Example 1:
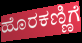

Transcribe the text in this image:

ಹೊರಕಣ್ಣಿಗೆ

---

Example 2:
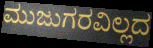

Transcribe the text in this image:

ಮುಜುಗರವಿಲ್ಲದ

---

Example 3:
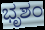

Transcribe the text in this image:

ಭೃಶಂ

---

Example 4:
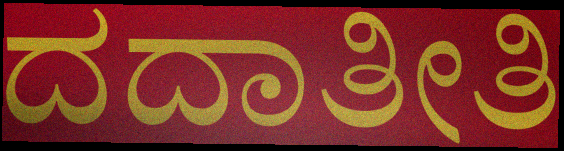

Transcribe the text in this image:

ದದಾತೀತಿ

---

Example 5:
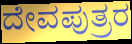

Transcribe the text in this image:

ದೇವಪುತ್ರರ